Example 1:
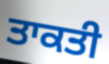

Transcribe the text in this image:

ਤਾਕਤੀ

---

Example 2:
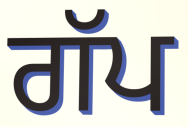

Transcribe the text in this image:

ਗੱਪ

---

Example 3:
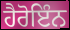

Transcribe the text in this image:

ਹੈਰੋਇੰਨ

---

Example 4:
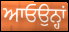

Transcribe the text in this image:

ਆਓਉਨ੍ਹਾਂ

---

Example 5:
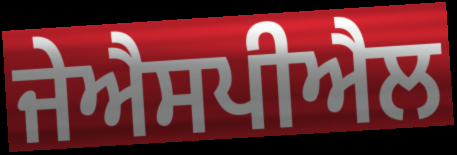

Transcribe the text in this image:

ਜੇਐਸਪੀਐਲ